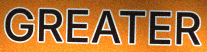
GREATER